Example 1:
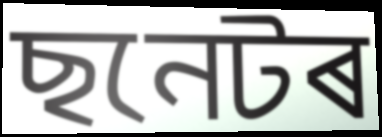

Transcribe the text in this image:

ছনেটৰ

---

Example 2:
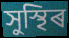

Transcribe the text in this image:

সুস্থিৰ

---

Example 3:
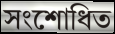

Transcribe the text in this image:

সংশোধিত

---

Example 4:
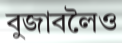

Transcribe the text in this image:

বুজাবলৈও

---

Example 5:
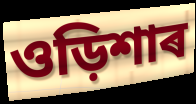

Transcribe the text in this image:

ওড়িশাৰ